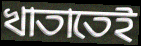
খাতাতেই